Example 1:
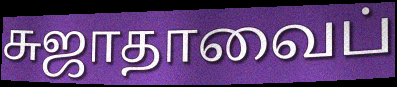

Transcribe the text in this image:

சுஜாதாவைப்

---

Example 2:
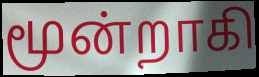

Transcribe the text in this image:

மூன்றாகி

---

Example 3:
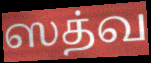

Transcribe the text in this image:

ஸத்வ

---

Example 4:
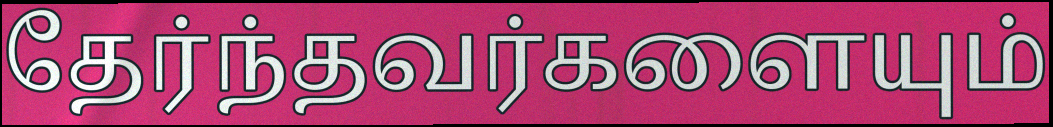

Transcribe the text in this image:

தேர்ந்தவர்களையும்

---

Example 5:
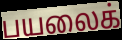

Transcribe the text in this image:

பயலைக்